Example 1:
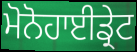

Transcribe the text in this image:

ਮੋਨੋਹਾਈਡ੍ਰੇਟ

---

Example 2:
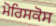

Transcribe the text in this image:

ਮੋਰਿਸਕੋਸ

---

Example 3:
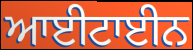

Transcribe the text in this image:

ਆਈਟਾਈਨ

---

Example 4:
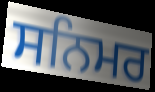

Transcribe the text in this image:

ਸਨਿਮਰ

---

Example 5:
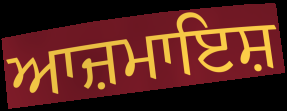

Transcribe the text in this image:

ਆਜ਼ਮਾਇਸ਼